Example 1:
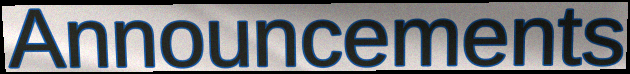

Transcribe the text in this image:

Announcements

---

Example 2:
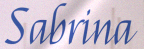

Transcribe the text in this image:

Sabrina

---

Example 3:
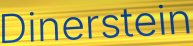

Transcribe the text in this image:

Dinerstein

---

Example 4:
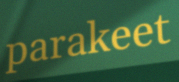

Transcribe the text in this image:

parakeet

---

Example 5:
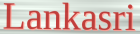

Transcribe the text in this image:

Lankasri